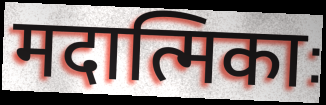
मदात्मिकाः